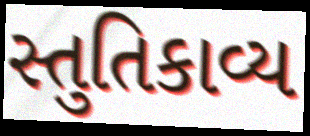
સ્તુતિકાવ્ય